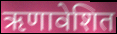
ऋणावेशित